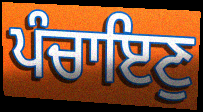
ਪੰਚਾਇਣੁ